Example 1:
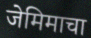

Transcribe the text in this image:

जेमिमाचा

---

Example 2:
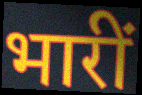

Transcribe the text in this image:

भारीं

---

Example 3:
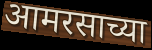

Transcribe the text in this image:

आमरसाच्या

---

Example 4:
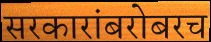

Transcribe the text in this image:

सरकारांबरोबरच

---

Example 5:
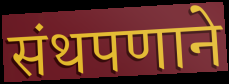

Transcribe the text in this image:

संथपणाने